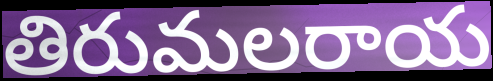
తిరుమలరాయ